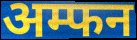
अम्फन